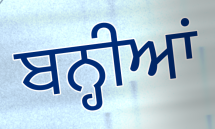
ਬਨ੍ਹੀਆਂ